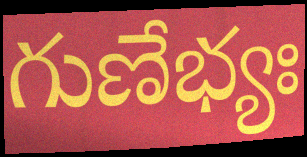
గుణేభ్యః